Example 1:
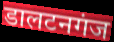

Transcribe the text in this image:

डालटनगंज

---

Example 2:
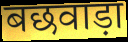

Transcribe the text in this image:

बछवाड़ा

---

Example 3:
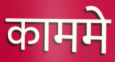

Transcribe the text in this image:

काममे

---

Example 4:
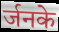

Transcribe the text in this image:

र्जनके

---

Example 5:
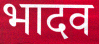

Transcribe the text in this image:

भादव